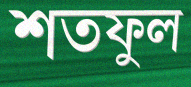
শতফুল